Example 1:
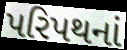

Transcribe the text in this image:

પરિપથનાં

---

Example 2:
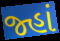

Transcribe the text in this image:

જ્હાં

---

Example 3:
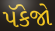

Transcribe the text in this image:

પૅકેજો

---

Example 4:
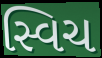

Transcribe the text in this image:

સ્વિચ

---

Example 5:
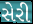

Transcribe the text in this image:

સેરી